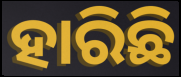
ହାରିଛି